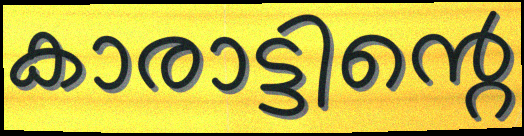
കാരാട്ടിന്റെ